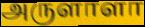
அருளாளா